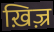
ख़िज़्र